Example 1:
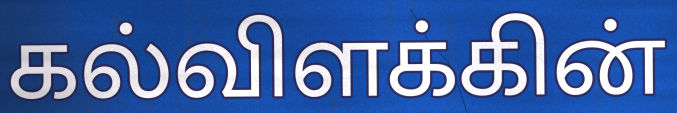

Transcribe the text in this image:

கல்விளக்கின்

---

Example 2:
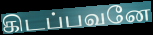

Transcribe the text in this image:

கிடப்பவனே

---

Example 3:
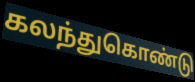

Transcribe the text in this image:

கலந்துகொண்டு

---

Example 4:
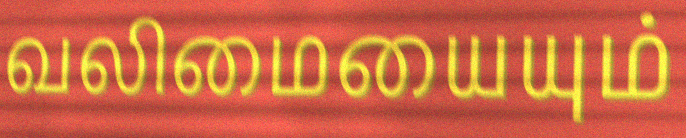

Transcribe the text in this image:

வலிமையையும்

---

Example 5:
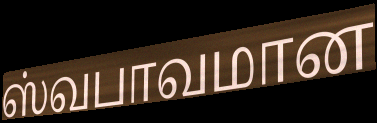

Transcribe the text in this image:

ஸ்வபாவமான